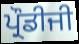
ਪ੍ਰੌਡੀਜੀ